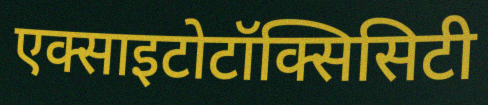
एक्साइटोटॉक्सिसिटी